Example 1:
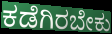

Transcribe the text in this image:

ಕಡೆಗಿರಬೇಕು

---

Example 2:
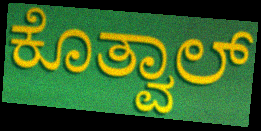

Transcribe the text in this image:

ಕೊತ್ವಾಲ್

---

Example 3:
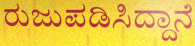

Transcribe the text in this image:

ರುಜುಪಡಿಸಿದ್ದಾನೆ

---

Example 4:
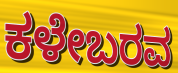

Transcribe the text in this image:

ಕಳೇಬರವ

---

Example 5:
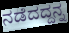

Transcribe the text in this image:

ನಡೆದದ್ದನ್ನ